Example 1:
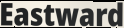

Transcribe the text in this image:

Eastward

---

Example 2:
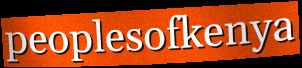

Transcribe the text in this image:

peoplesofkenya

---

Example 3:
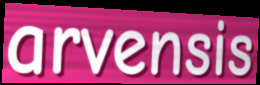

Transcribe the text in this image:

arvensis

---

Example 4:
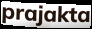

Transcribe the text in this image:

prajakta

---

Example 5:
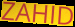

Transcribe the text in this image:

ZAHID